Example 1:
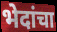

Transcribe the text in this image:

भेदांचा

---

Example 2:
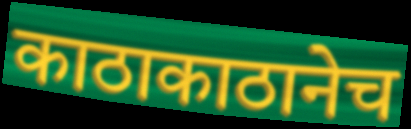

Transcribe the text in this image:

काठाकाठानेच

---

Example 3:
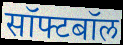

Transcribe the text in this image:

सॉफ्टबॉल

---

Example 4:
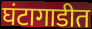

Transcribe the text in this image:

घंटागाडीत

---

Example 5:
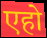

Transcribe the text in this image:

एहो